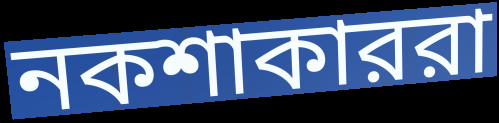
নকশাকাররা